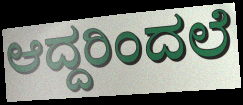
ಆದ್ದರಿಂದಲೆ